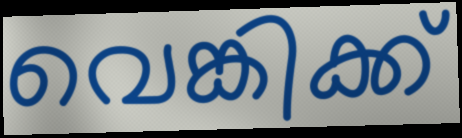
വെങ്കിക്ക്